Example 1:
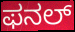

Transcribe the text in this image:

ಫನಲ್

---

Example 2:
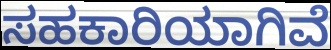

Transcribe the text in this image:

ಸಹಕಾರಿಯಾಗಿವೆ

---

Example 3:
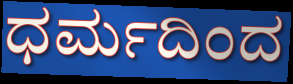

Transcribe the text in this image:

ಧರ್ಮದಿಂದ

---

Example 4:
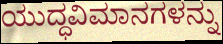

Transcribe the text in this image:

ಯುದ್ಧವಿಮಾನಗಳನ್ನು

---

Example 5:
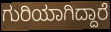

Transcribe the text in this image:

ಗುರಿಯಾಗಿದ್ದಾರೆ